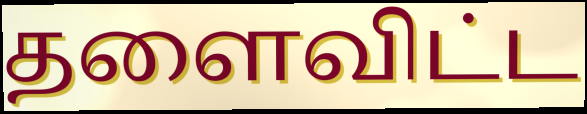
தளைவிட்ட